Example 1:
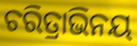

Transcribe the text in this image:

ଚରିତ୍ରାଭିନୟ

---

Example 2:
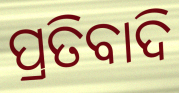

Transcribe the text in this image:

ପ୍ରତିବାଦି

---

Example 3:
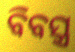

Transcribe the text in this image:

ବିବସ୍ତ୍ର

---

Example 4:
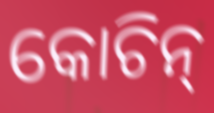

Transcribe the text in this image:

କୋଚିନ୍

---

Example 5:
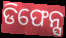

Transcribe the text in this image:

ଡିଫେନ୍ସ